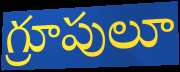
గ్రూపులూ